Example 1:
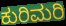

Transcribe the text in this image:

ಕುರಿಮರಿ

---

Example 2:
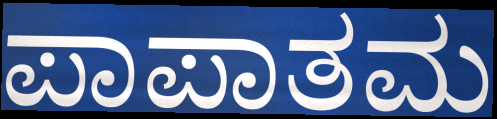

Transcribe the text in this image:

ಪಾಪಾತಮ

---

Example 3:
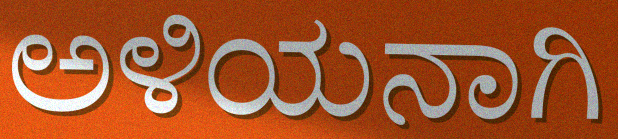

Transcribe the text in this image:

ಅಳಿಯನಾಗಿ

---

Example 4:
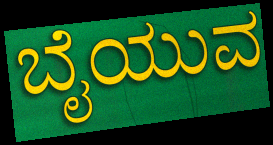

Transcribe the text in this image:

ಬೈಯುವ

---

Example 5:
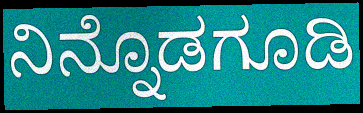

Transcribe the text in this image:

ನಿನ್ನೊಡಗೂಡಿ